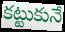
కట్టుకునే